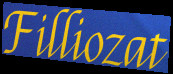
Filliozat